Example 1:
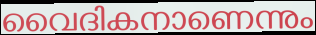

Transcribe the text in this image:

വൈദികനാണെന്നും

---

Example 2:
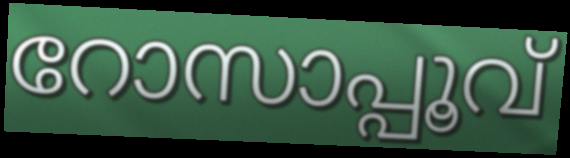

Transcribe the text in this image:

റോസാപ്പൂവ്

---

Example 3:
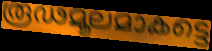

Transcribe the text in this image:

രൂഢമൂലമാകട്ടെ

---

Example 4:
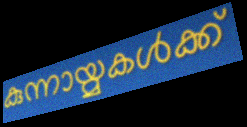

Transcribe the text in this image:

കുന്നായ്മകൾക്ക്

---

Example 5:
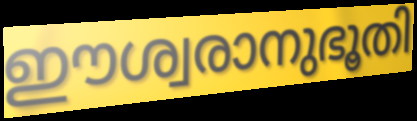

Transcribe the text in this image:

ഈശ്വരാനുഭൂതി